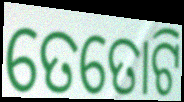
ତେତୋଟି